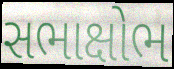
સભાક્ષોભ